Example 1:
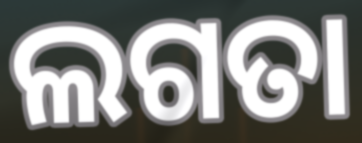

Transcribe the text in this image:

ଲଗତା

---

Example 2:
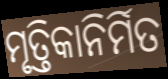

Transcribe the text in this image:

ମୃତ୍ତିକାନିର୍ମିତ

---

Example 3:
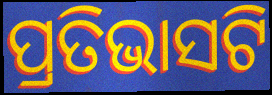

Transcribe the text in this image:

ପ୍ରତିଭାସଟି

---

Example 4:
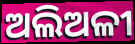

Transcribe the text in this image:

ଅଲିଅଳୀ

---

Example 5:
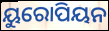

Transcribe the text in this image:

ୟୁରୋପିୟନ